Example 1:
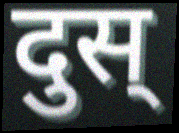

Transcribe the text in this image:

दुस्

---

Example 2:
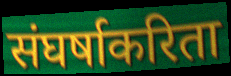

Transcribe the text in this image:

संघर्षाकरिता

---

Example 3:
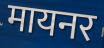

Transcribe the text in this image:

मायनर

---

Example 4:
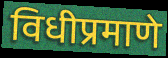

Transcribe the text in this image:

विधीप्रमाणे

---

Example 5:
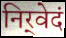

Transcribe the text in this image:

निर्वेदं